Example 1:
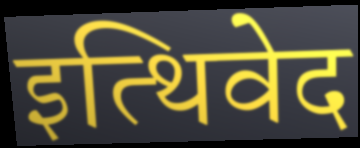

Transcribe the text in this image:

इत्थिवेद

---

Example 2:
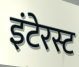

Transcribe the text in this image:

इंटेरस्ट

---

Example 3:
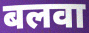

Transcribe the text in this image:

बलवा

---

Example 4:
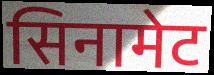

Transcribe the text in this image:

सिनामेट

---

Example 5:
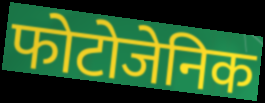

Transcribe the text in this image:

फोटोजेनिक